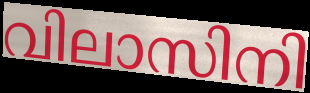
വിലാസിനി